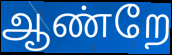
ஆண்றே